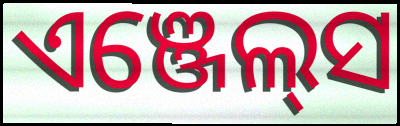
ଏଞ୍ଜେଲ୍‍ସ